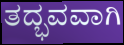
ತದ್ಭವವಾಗಿ